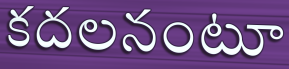
కదలనంటూ